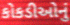
કોકડીઓનું